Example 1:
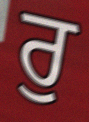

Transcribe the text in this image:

ਰੁ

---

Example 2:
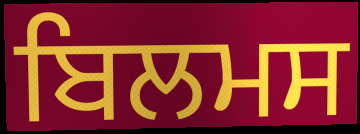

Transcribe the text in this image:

ਬਿਲਮਸ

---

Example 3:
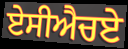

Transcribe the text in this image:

ਏਸੀਐਚਏ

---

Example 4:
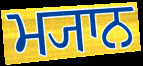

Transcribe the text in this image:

ਮ੍ਯਾਨ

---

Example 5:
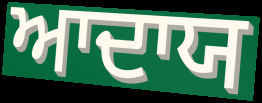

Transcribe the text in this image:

ਆਦਾਯ